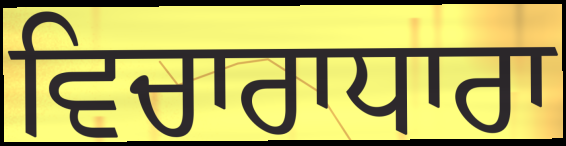
ਵਿਚਾਰਾਧਾਰਾ